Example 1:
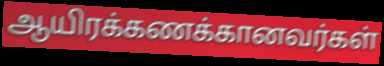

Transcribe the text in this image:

ஆயிரக்கணக்கானவர்கள்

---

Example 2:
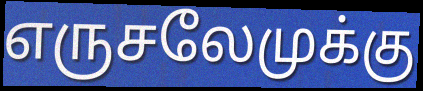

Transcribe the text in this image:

எருசலேமுக்கு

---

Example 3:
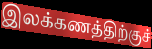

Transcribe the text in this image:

இலக்கணத்திற்குச்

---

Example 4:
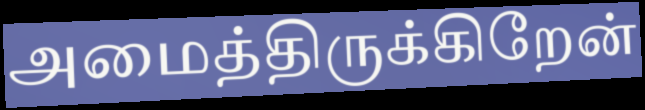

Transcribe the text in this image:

அமைத்திருக்கிறேன்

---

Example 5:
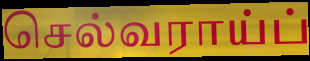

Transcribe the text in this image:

செல்வராய்ப்